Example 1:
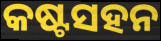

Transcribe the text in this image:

କଷ୍ଟସହନ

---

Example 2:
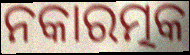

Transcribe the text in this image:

ନକାରତ୍ମକ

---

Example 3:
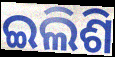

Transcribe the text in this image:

ଇଲିଶି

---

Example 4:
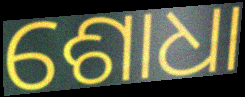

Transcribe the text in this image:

ଶୋଧା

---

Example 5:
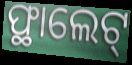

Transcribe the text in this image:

ଫ୍ଥାଲେଟ୍